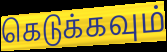
கெடுக்கவும்